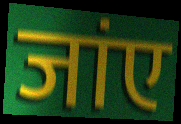
जांए